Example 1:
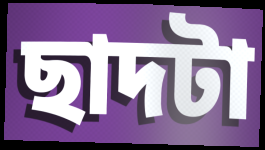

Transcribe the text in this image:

ছাদটা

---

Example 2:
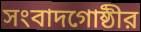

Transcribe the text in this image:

সংবাদগোষ্ঠীর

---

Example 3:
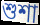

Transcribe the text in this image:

শুশা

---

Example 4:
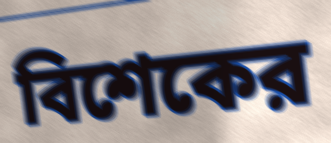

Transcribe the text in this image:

বিশেকের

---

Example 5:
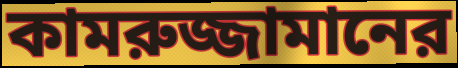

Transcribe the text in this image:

কামরুজ্জামানের